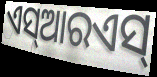
ଏସ୍ଆରଏସ୍